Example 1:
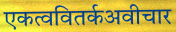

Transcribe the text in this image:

एकत्ववितर्कअवीचार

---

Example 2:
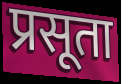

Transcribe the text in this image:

प्रसूता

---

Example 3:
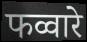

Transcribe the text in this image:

फव्वारे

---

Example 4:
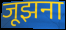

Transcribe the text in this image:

जूझना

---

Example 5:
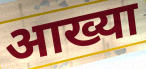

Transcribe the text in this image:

आख्या